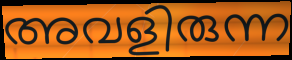
അവളിരുന്ന